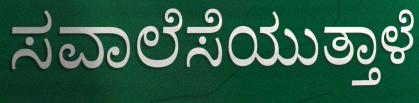
ಸವಾಲೆಸೆಯುತ್ತಾಳೆ